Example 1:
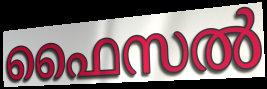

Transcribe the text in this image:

ഫൈസൽ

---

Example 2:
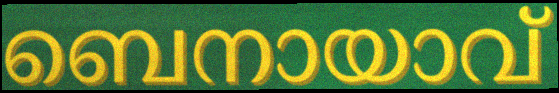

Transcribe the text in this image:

ബെനായാവ്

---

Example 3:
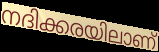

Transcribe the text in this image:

നദിക്കരയിലാണ്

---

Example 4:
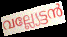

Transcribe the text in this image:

വല്ല്യേട്ടൻ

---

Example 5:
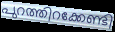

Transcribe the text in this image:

പുറത്തിറക്കേണ്ടി